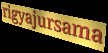
rigyajursama